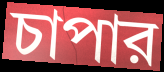
চাপার